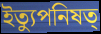
ইত্যুপনিষত্